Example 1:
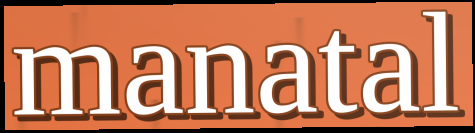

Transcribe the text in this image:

manatal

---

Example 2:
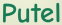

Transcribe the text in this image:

Putel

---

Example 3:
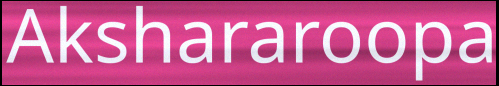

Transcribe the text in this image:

Akshararoopa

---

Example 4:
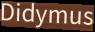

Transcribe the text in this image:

Didymus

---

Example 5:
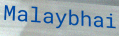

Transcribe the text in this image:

Malaybhai